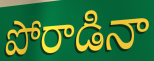
పోరాడినా